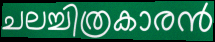
ചലച്ചിത്രകാരൻ